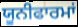
ਯੂਨੀਫਾਰਮਾਂ